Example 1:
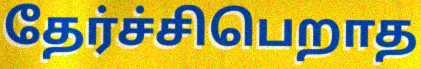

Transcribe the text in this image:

தேர்ச்சிபெறாத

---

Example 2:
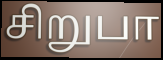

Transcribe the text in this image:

சிறுபா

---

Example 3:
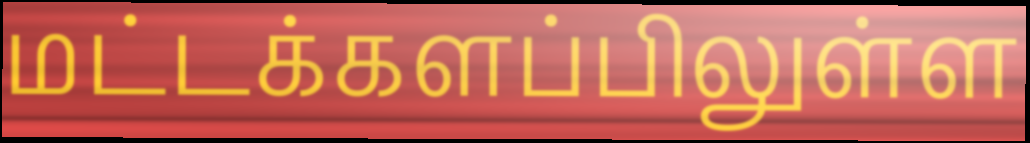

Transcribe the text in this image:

மட்டக்களப்பிலுள்ள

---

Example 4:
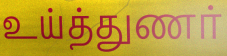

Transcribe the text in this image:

உய்த்துணர்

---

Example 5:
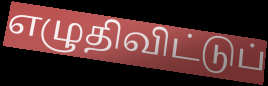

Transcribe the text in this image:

எழுதிவிட்டுப்